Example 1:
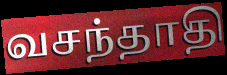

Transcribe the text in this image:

வசந்தாதி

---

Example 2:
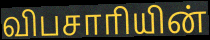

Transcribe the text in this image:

விபசாரியின்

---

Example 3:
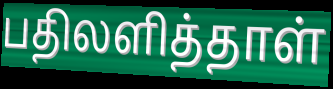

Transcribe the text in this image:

பதிலளித்தாள்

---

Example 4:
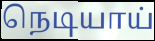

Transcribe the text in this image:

நெடியாய்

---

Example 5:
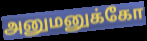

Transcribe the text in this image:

அனுமனுக்கோ